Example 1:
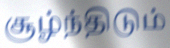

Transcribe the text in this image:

சூழ்ந்திடும்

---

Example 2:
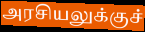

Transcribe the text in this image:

அரசியலுக்குச்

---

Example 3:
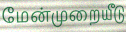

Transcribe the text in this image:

மேன்முறையீடு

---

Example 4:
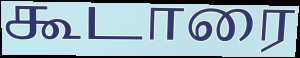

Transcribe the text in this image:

கூடாரை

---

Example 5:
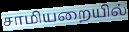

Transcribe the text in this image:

சாமியறையில்